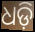
ଧଡ଼ି